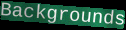
Backgrounds